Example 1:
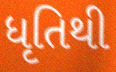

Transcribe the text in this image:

ધૃતિથી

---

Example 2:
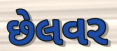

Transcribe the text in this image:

છેલવર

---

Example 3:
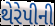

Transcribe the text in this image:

થેરેપીની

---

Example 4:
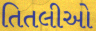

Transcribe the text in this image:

તિતલીઓ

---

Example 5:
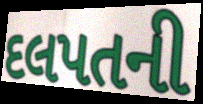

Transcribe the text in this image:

દલપતની